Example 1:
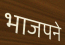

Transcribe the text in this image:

भाजपने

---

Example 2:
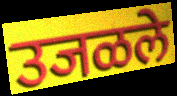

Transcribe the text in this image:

उजळले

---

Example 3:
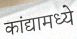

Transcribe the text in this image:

कांद्यामध्ये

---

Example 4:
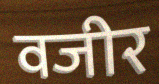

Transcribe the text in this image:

वजीर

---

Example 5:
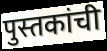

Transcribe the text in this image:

पुस्तकांची